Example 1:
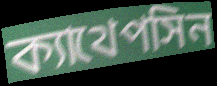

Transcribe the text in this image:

ক্যাথেপসিন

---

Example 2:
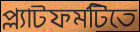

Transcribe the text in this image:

প্ল্যাটফর্মটিতে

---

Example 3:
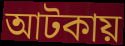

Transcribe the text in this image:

আটকায়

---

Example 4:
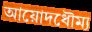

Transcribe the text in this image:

আয়োদধৌম্য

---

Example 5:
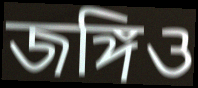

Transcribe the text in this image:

জঙ্গিও